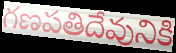
గణపతిదేవునికి